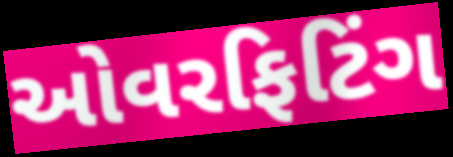
ઓવરફિટિંગ